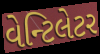
વેન્‍ટિલેટર